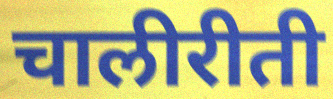
चालीरीती